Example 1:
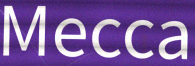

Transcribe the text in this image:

Mecca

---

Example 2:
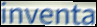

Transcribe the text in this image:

inventa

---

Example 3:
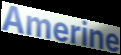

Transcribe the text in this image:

Amerine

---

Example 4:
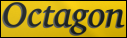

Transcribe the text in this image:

Octagon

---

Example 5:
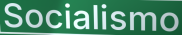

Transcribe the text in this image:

Socialismo